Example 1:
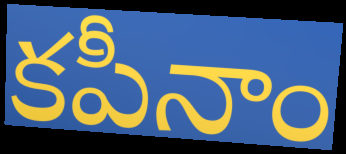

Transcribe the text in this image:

కపీనాం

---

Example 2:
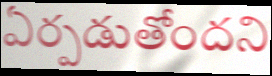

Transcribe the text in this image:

ఏర్పడుతోందని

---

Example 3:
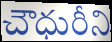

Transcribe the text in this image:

చౌధురీని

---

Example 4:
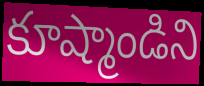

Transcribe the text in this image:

కూష్మాండిని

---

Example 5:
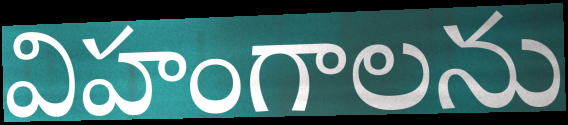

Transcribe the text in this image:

విహంగాలను